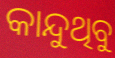
କାନ୍ଦୁଥିବୁ